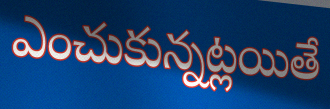
ఎంచుకున్నట్లయితే